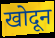
खोदून